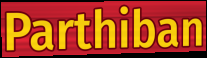
Parthiban